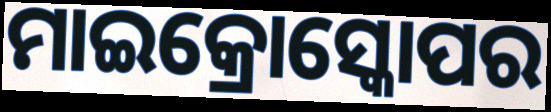
ମାଇକ୍ରୋସ୍କୋପର